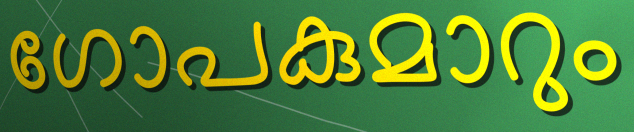
ഗോപകുമാറും